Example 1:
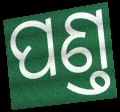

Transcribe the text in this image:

ପଣ୍ତ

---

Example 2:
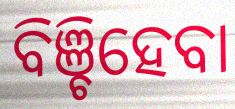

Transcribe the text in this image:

ବିଞ୍ଚିହେବା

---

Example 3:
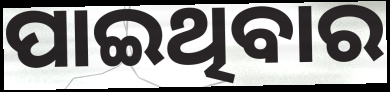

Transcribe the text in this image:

ପାଇଥିବାର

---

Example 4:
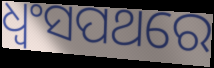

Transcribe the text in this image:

ଧ୍ବଂସପଥରେ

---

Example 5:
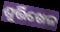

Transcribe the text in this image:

ଶୁର୍ତ୍ତିଖେଳ